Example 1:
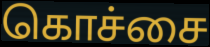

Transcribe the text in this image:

கொச்சை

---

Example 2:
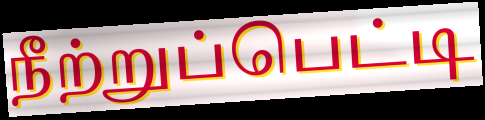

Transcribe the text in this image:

நீற்றுப்பெட்டி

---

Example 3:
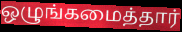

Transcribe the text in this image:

ஒழுங்கமைத்தார்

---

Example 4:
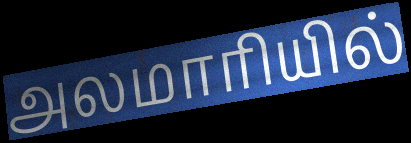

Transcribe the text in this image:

அலமாரியில்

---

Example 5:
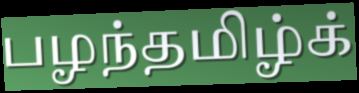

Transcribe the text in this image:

பழந்தமிழ்க்